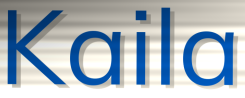
Kaila